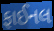
ફાઈનલ